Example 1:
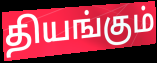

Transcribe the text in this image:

தியங்கும்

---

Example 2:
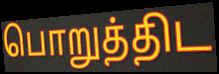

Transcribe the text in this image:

பொறுத்திட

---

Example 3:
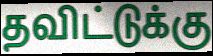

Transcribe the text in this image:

தவிட்டுக்கு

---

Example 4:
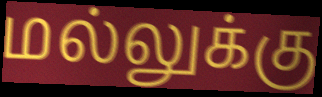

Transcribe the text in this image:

மல்லுக்கு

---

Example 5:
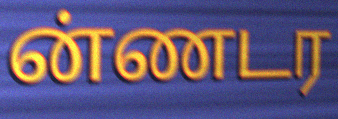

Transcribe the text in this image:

ன்ணடர